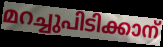
മറച്ചുപിടിക്കാന്